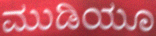
ಮುಡಿಯೂ